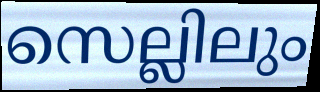
സെല്ലിലും